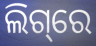
ଲିଗ୍‌ରେ